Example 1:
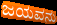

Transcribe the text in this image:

ಜಯವನು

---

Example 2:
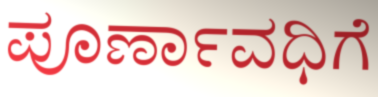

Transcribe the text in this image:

ಪೂರ್ಣಾವಧಿಗೆ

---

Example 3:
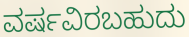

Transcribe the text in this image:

ವರ್ಷವಿರಬಹುದು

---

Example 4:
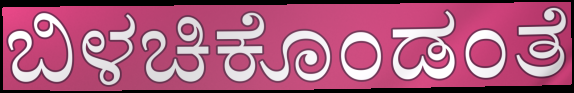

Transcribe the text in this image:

ಬಿಳಚಿಕೊಂಡಂತೆ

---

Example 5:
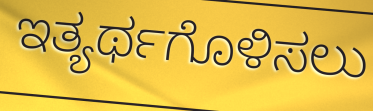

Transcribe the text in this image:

ಇತ್ಯರ್ಥಗೊಳಿಸಲು